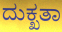
ದುಕ್ಖತಾ